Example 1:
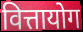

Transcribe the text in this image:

वित्तायोग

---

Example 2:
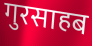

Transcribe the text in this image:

गुरसाहब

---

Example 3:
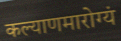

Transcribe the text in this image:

कल्याणमारोग्यं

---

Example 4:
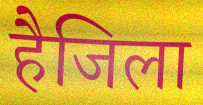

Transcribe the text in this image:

हैजिला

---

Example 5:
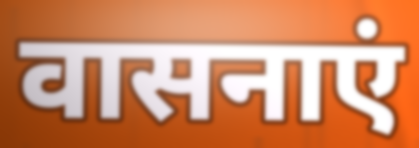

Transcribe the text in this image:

वासनाएं